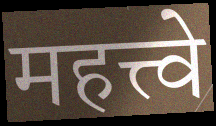
महत्त्वे